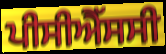
ਪੀਸੀਐੱਸਸੀ